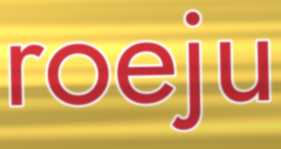
roeju